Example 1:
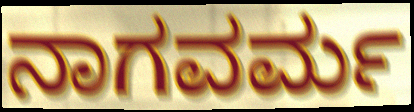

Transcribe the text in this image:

ನಾಗವರ್ಮ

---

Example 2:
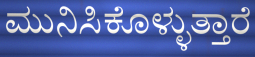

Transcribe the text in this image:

ಮುನಿಸಿಕೊಳ್ಳುತ್ತಾರೆ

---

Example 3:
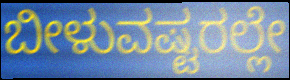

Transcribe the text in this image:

ಬೀಳುವಷ್ಟರಲ್ಲೇ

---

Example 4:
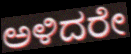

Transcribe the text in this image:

ಅಳಿದರೇ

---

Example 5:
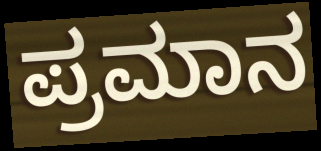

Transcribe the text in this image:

ಪ್ರಮಾನ